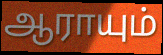
ஆராயும்